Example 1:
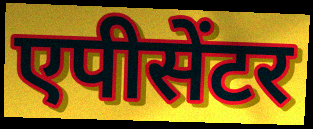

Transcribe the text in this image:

एपीसेंटर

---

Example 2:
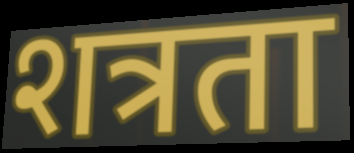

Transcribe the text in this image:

शत्रता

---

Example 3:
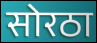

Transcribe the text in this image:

सोरठा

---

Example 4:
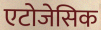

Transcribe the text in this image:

एटोजेसिक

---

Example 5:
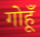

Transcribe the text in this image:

गोहूँ